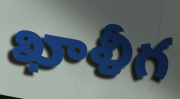
ఖాళీగ